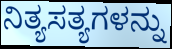
ನಿತ್ಯಸತ್ಯಗಳನ್ನು